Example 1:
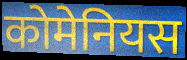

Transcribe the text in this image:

कोमेनियस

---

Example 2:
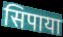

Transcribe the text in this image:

सिपाया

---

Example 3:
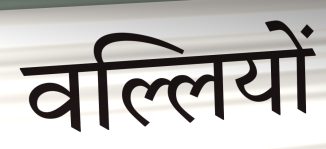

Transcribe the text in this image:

वल्लियों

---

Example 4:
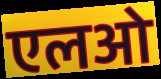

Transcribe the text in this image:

एलओ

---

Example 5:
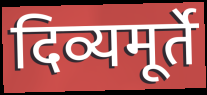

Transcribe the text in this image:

दिव्यमूर्ते